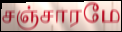
சஞ்சாரமே